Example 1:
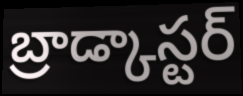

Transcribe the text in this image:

బ్రాడ్కాస్టర్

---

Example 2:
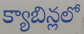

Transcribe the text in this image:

క్యాబిన్లలో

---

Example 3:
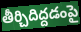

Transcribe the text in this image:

తీర్చిదిద్దడంపై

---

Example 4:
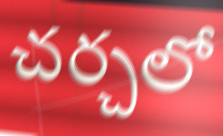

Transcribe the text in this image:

చర్చలో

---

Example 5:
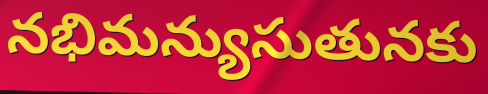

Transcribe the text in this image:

నభిమన్యుసుతునకు